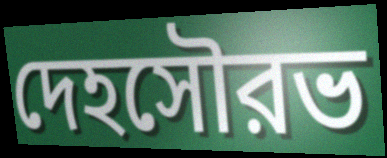
দেহসৌরভ